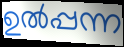
ഉൽപ്പന്ന